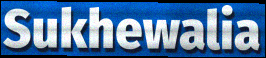
Sukhewalia